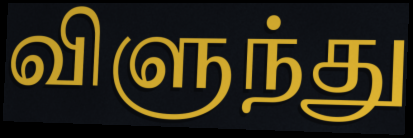
விளுந்து